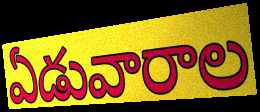
ఏడువారాల